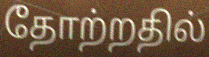
தோற்றதில்